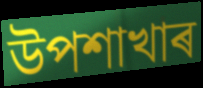
উপশাখাৰ